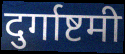
दुर्गाष्टमी